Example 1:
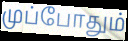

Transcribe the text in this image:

முப்போதும்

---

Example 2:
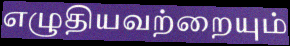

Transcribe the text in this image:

எழுதியவற்றையும்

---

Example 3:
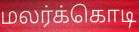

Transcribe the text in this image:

மலர்க்கொடி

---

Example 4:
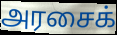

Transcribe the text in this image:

அரசைக்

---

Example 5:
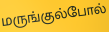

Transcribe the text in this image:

மருங்குல்போல்